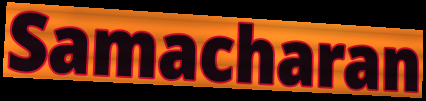
Samacharan